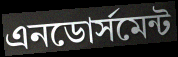
এনডোর্সমেন্ট